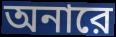
অনারে